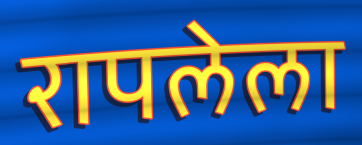
रापलेला